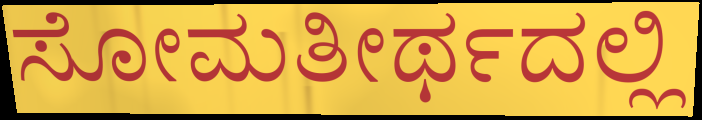
ಸೋಮತೀರ್ಥದಲ್ಲಿ